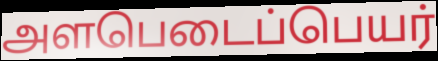
அளபெடைப்பெயர்